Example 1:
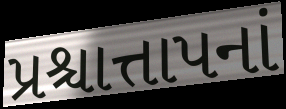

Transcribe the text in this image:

પ્રશ્ચાત્તાપનાં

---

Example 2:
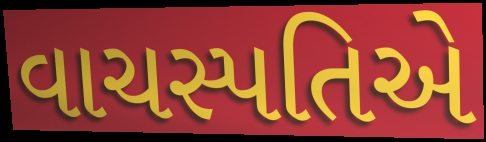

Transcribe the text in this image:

વાચસ્પતિએ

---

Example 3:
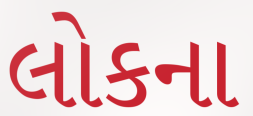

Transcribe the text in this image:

લોકના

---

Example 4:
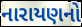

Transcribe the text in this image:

નારાયણનો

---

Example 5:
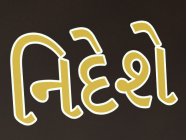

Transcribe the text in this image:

નિદેશે